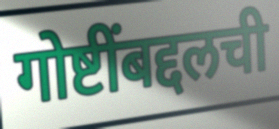
गोष्टींबद्दलची